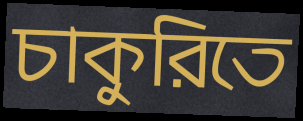
চাকুরিতে